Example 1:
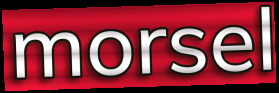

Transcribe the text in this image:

morsel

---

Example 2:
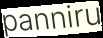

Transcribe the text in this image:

panniru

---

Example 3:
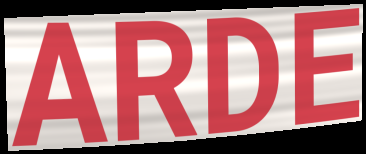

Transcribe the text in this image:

ARDE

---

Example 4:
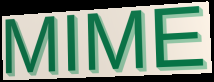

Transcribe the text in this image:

MIME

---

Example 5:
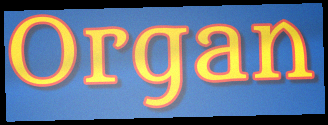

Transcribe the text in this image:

Organ